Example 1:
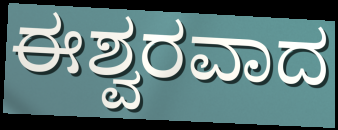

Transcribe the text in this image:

ಈಶ್ವರವಾದ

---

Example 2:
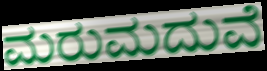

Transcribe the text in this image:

ಮರುಮದುವೆ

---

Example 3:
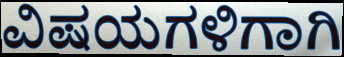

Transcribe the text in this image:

ವಿಷಯಗಳಿಗಾಗಿ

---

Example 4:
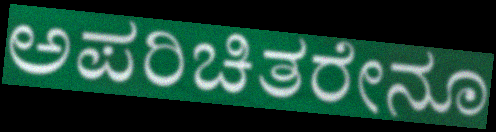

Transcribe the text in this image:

ಅಪರಿಚಿತರೇನೂ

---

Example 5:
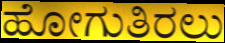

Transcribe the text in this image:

ಹೋಗುತಿರಲು